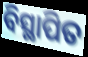
ବିସ୍ଥାପିତ